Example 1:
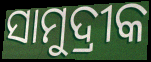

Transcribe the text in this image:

ସାମୁଦ୍ରୀକ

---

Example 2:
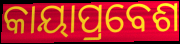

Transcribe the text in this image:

କାୟାପ୍ରବେଶ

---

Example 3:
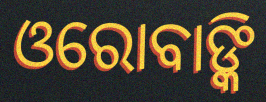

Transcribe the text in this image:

ଓରୋବାଙ୍କି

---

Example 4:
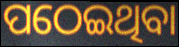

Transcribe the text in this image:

ପଠେଇଥିବା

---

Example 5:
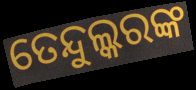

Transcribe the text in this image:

ତେନ୍ଦୁଲ୍କରଙ୍କ